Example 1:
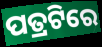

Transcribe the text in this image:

ପତ୍ରଟିରେ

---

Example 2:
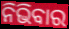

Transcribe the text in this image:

ନିଭିବାର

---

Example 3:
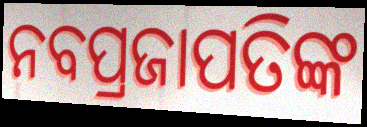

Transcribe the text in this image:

ନବପ୍ରଜାପତିଙ୍କ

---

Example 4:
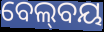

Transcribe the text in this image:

ବେଲ୍‍ବୟ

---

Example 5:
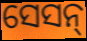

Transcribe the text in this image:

ସେସନ୍